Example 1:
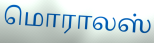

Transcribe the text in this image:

மொராலஸ்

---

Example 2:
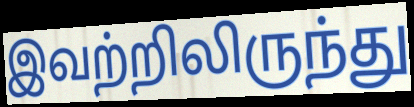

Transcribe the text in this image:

இவற்றிலிருந்து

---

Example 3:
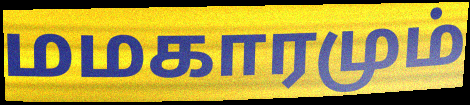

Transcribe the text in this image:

மமகாரமும்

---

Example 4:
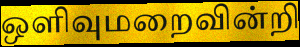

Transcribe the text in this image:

ஒளிவுமறைவின்றி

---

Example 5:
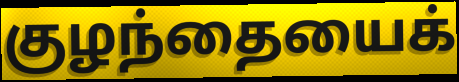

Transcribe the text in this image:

குழந்தையைக்